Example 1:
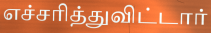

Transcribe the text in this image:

எச்சரித்துவிட்டார்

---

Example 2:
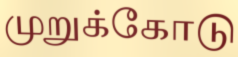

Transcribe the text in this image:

முறுக்கோடு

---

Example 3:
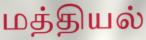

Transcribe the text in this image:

மத்தியல்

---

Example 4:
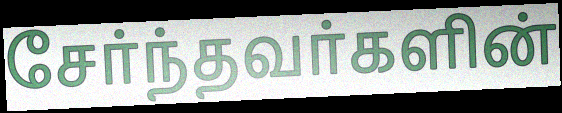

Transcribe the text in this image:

சேர்ந்தவர்களின்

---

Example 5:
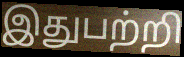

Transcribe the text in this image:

இதுபற்றி